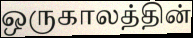
ஒருகாலத்தின்